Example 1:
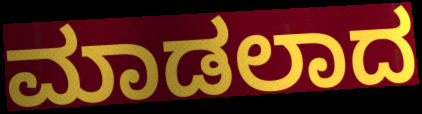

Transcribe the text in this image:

ಮಾಡಲಾದ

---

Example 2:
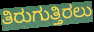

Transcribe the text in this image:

ತಿರುಗುತ್ತಿರಲು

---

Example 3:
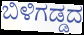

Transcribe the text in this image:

ಬಿಳಿಗಡ್ಡದ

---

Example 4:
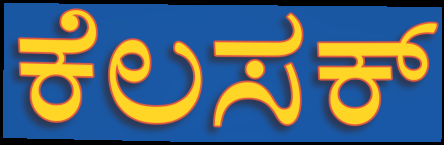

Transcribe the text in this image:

ಕೆಲಸಕ್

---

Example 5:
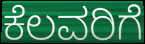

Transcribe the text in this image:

ಕೆಲವರಿಗೆ